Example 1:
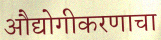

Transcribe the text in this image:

औद्योगीकरणाचा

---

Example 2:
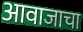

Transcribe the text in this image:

आवाजाचा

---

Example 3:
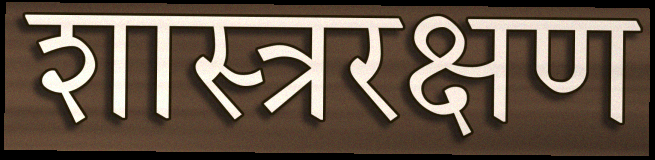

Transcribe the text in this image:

शास्त्ररक्षण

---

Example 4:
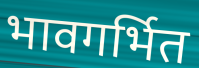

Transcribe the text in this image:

भावगर्भित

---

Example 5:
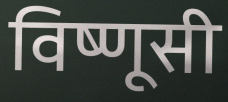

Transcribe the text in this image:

विष्णूसी